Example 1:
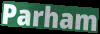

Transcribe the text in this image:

Parham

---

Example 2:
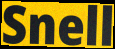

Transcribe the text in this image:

Snell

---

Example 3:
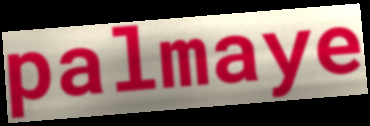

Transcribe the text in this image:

palmaye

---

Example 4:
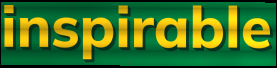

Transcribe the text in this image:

inspirable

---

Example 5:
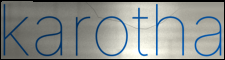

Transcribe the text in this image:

karotha